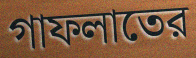
গাফলাতের